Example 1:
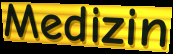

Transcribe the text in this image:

Medizin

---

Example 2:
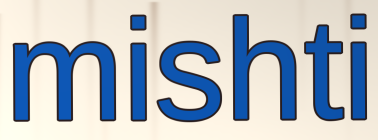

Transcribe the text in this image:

mishti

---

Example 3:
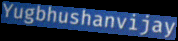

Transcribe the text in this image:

Yugbhushanvijay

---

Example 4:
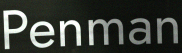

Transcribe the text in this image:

Penman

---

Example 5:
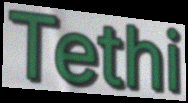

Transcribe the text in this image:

Tethi